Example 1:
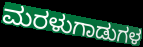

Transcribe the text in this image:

ಮರಳುಗಾಡುಗಳ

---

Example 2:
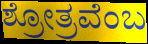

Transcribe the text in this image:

ಶ್ರೋತ್ರವೆಂಬ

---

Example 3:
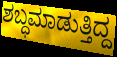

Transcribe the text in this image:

ಶಬ್ಧಮಾಡುತ್ತಿದ್ದ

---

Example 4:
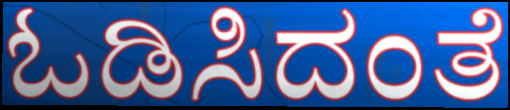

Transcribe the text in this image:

ಓಡಿಸಿದಂತೆ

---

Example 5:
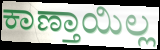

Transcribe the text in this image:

ಕಾಣ್ತಾಯಿಲ್ಲ